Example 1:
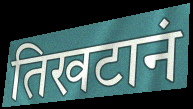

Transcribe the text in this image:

तिखटानं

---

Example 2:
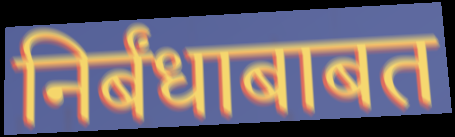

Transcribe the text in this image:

निर्बंधाबाबत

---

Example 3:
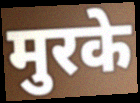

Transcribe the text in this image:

मुरके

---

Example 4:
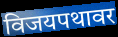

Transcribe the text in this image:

विजयपथावर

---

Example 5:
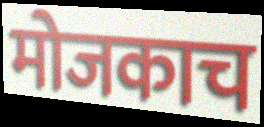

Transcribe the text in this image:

मोजकाच